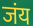
जंय